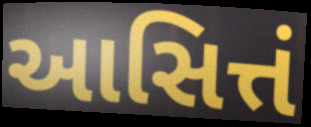
આસિત્તં